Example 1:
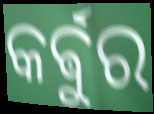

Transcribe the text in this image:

କର୍ଵୁର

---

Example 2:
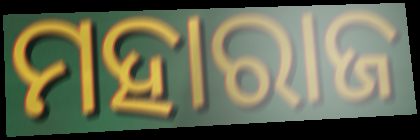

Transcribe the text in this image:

ମହାରାଜ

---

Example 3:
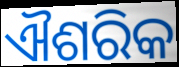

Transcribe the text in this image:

ଐଶରିକ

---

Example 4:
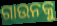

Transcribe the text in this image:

ଗାଉନକୁ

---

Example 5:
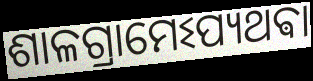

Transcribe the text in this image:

ଶାଳଗ୍ରାମେଽପ୍ଯଥଵା